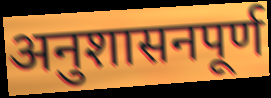
अनुशासनपूर्ण